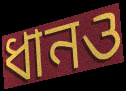
ধানও